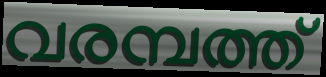
വരമ്പത്ത്